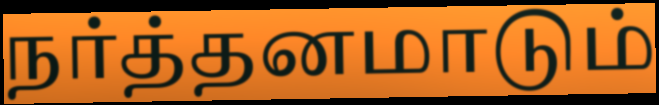
நர்த்தனமாடும்